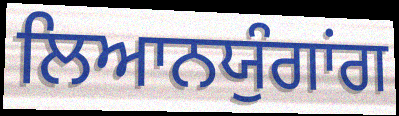
ਲਿਆਨਯੁੰਗਾਂਗ